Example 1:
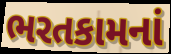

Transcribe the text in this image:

ભરતકામનાં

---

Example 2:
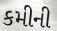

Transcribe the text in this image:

કમીની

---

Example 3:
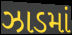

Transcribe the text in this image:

ઝાડમાં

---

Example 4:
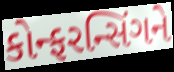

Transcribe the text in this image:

કોન્ફરન્સિંગને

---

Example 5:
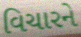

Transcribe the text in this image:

વિચારને